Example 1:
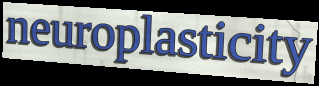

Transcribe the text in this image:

neuroplasticity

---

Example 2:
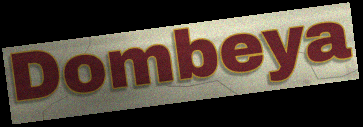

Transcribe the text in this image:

Dombeya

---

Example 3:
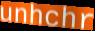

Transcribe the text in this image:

unhchr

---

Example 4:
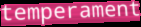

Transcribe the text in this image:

temperament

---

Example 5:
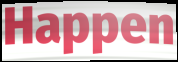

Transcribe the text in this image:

Happen